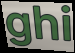
ghi